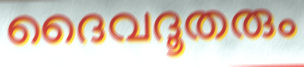
ദൈവദൂതരും